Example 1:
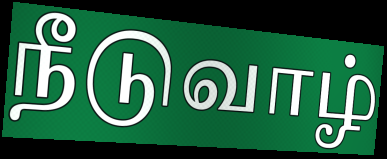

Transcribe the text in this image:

நீடுவாழ்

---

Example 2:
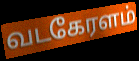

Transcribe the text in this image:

வடகேரளம்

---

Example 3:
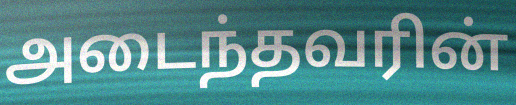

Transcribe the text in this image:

அடைந்தவரின்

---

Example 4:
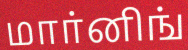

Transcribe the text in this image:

மார்னிங்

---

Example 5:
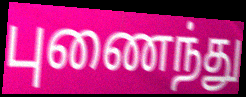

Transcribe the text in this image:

புணைந்து